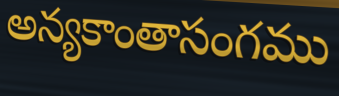
అన్యకాంతాసంగము